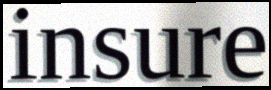
insure